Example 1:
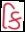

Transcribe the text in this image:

કિ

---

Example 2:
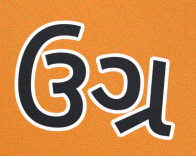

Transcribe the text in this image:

ઉગ્ર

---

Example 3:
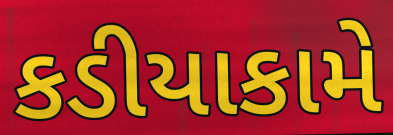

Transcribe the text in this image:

કડીયાકામે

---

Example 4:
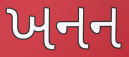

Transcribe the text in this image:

ખનન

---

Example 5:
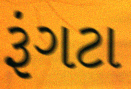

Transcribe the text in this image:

રૂંગટા